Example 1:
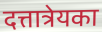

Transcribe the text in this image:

दत्तात्रेयका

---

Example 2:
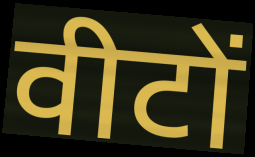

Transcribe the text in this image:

वीटों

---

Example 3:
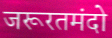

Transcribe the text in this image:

जरूरतमंदो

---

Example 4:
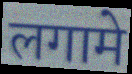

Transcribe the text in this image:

लगामे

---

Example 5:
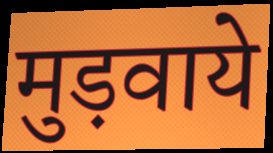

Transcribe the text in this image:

मुड़वाये